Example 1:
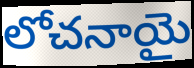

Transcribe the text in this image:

లోచనాయై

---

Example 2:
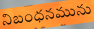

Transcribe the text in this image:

నిబంధనమును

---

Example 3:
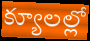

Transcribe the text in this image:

క్యూలల్లో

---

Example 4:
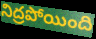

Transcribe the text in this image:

నిద్రపోయింది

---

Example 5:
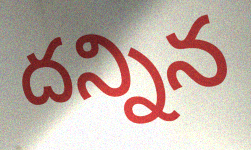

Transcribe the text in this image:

దన్నిన